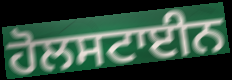
ਹੋਲਸਟਾਈਨ